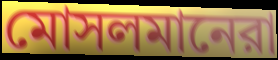
মোসলমানেরা